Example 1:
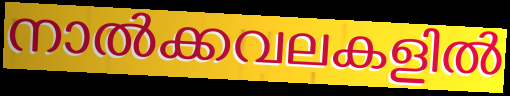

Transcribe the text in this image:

നാൽക്കവലകളിൽ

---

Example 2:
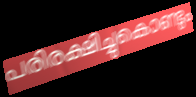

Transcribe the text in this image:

പരിരക്ഷിച്ചുകൊണ്ടും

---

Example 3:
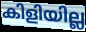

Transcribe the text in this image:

കിളിയില്ല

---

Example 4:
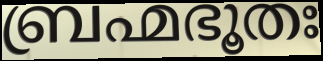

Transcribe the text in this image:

ബ്രഹ്മഭൂതഃ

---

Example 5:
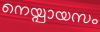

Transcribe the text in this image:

നെയ്പായസം